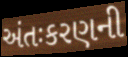
અંતઃકરણની